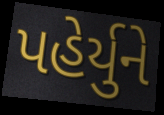
પહેર્યુને